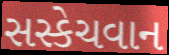
સસ્કેચવાન